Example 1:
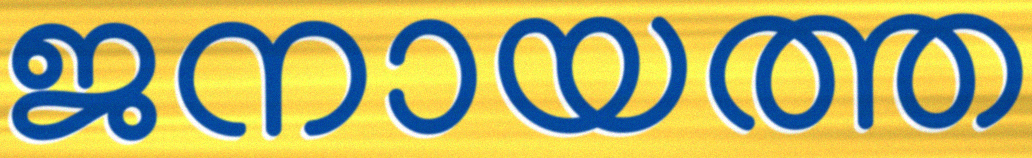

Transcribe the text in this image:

ജനായത്ത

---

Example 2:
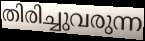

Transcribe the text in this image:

തിരിച്ചുവരുന്ന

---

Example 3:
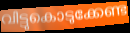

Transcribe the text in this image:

വിട്ടുകൊടുക്കേണ്ട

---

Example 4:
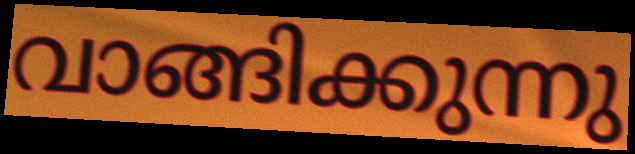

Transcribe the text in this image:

വാങ്ങിക്കുന്നു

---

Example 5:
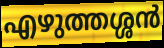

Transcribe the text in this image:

എഴുത്തശ്ശൻ